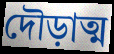
দৌড়াত্ম